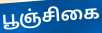
பூஞ்சிகை